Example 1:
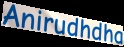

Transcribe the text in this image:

Anirudhdha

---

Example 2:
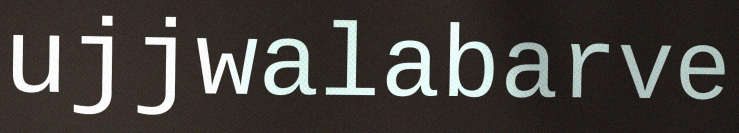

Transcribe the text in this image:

ujjwalabarve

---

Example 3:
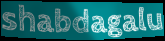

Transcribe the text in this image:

shabdagalu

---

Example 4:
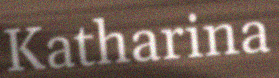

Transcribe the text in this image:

Katharina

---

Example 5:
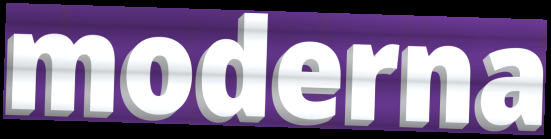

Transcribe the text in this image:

moderna